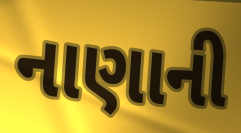
નાણાની